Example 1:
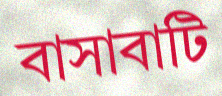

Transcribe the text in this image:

বাসাবাটি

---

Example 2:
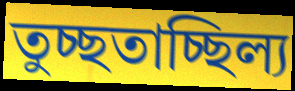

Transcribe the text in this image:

তুচ্ছতাচ্ছিল্য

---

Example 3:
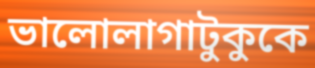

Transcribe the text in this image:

ভালোলাগাটুকুকে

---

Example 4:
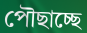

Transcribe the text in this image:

পৌছাচ্ছে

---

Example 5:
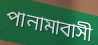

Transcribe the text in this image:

পানামাবাসী